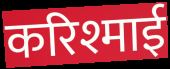
करिश्माई